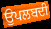
ਉਪਲਬਦੀ